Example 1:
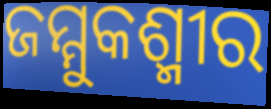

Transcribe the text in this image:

ଜମ୍ମୁକଶ୍ମୀର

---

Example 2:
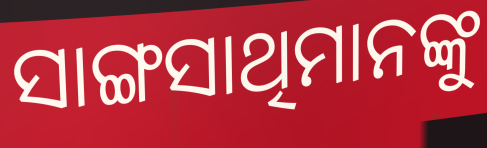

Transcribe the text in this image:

ସାଙ୍ଗସାଥିମାନଙ୍କୁ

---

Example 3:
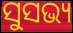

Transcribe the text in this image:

ସୁସଭ୍ୟ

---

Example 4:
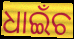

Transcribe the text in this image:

ଧାଇଁଚ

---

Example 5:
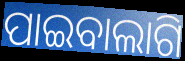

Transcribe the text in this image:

ପାଇବାଲାଗି